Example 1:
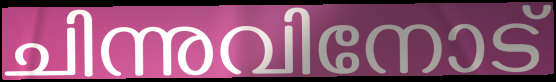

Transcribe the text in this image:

ചിന്നുവിനോട്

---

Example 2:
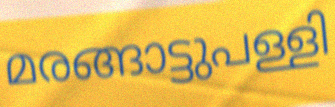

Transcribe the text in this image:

മരങ്ങാട്ടുപള്ളി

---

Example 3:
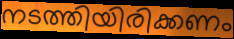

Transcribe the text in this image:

നടത്തിയിരിക്കണം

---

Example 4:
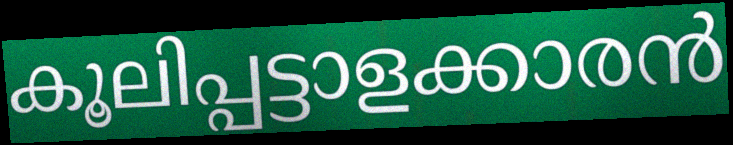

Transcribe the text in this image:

കൂലിപ്പട്ടാളക്കാരൻ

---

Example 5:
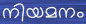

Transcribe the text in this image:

നിയമനം